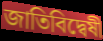
জাতিবিদ্বেষী